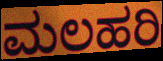
ಮಲಹರಿ